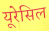
यूरेसिल